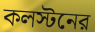
কলস্টনের